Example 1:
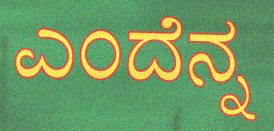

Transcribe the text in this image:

ಎಂದೆನ್ನ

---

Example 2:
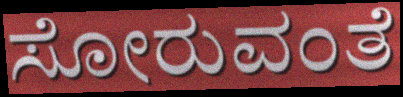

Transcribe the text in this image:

ಸೋರುವಂತೆ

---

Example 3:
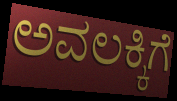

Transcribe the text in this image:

ಅವಲಕ್ಕಿಗೆ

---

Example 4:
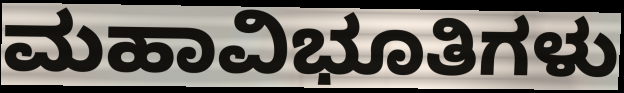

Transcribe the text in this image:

ಮಹಾವಿಭೂತಿಗಳು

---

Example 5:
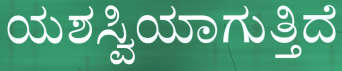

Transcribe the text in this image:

ಯಶಸ್ವಿಯಾಗುತ್ತಿದೆ